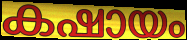
കഷായം